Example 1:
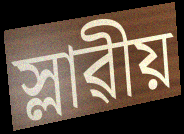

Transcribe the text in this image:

স্লাৱীয়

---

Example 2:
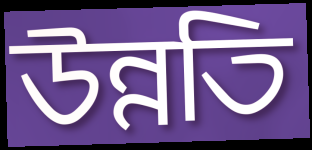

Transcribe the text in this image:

উন্নতি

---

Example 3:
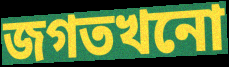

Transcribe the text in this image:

জগতখনো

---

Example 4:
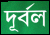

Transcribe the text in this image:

দূৰ্বল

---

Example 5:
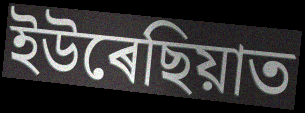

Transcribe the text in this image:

ইউৰেছিয়াত